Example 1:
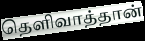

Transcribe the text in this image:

தெளிவாத்தான்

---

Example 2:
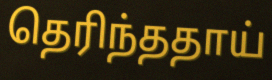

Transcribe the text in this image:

தெரிந்ததாய்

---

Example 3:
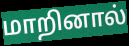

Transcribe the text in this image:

மாறினால்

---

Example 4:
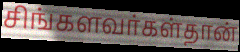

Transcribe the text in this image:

சிங்களவர்கள்தான்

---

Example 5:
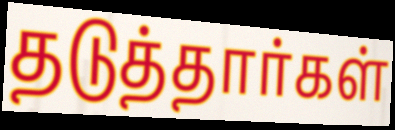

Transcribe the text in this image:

தடுத்தார்கள்